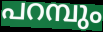
പറമ്പും